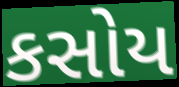
કસોય